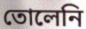
তোলেনি